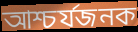
আশ্চর্যজনক